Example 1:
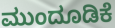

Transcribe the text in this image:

ಮುಂದೂಡಿಕೆ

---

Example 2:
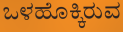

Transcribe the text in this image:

ಒಳಹೊಕ್ಕಿರುವ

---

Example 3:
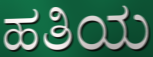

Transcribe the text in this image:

ಹತಿಯ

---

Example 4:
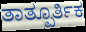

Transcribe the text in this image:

ತಾತ್ಪೂರ್ತಿಕ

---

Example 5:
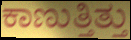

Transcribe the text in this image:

ಕಾಣುತ್ತಿತ್ತು